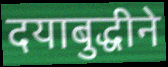
दयाबुद्धीने